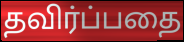
தவிர்ப்பதை